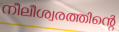
നീലീശ്വരത്തിന്റെ